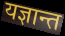
यज्ञान्त